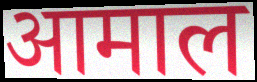
आमाल